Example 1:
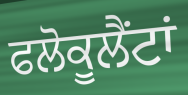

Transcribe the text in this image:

ਫਲੋਕੂਲੈਂਟਾਂ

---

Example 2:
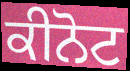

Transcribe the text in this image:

ਕੀਨੋਟ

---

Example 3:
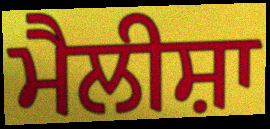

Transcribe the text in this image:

ਮੈਲੀਸ਼ਾ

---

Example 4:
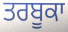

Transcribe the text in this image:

ਤਰਬੂਕਾ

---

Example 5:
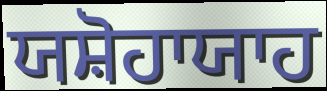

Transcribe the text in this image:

ਯਸ਼ੋਹਾਯਾਹ